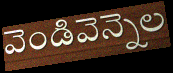
వెండివెన్నెల